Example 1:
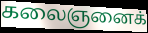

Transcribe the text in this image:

கலைஞனைக்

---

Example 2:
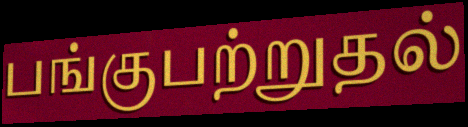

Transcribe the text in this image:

பங்குபற்றுதல்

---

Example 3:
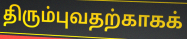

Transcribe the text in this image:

திரும்புவதற்காகக்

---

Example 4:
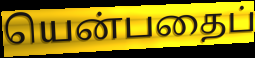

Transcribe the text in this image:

யென்பதைப்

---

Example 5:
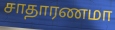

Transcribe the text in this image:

சாதாரணமா